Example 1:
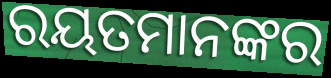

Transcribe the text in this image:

ରୟତମାନଙ୍କର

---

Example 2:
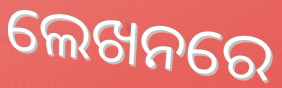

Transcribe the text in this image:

ଲେଖନରେ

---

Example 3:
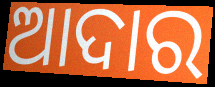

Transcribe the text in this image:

ଆଦାର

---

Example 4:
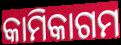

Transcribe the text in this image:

କାମିକାଗମ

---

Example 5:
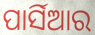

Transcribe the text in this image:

ପାର୍ସିଆର